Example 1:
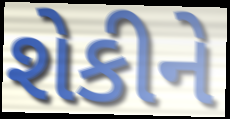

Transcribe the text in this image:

શેકીને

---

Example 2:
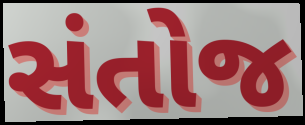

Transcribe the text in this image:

સંતોજ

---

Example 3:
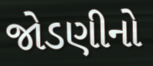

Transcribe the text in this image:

જોડણીનો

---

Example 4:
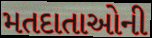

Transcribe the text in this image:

મતદાતાઓની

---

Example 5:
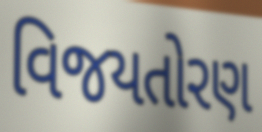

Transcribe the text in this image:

વિજયતોરણ